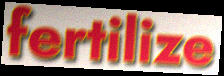
fertilize